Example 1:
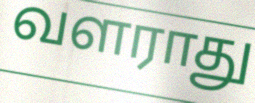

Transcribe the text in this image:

வளராது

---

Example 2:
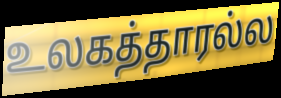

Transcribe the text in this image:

உலகத்தாரல்ல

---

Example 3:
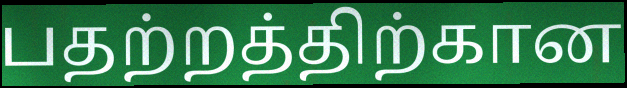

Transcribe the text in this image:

பதற்றத்திற்கான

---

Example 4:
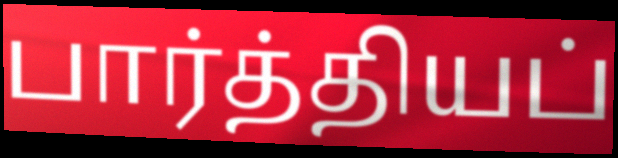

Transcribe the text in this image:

பார்த்தியப்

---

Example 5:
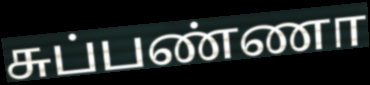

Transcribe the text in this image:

சுப்பண்ணா